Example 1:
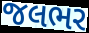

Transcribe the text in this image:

જલભર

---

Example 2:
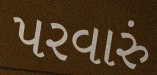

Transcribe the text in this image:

પરવારું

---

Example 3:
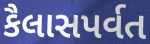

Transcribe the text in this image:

કૈલાસપર્વત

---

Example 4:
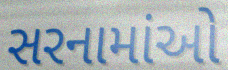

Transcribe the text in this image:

સરનામાંઓ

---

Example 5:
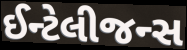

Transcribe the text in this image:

ઈન્ટેલીજન્સ